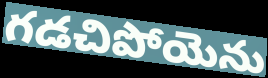
గడచిపోయెను